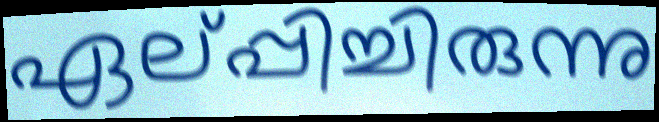
ഏല്പ്പിച്ചിരുന്നു